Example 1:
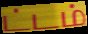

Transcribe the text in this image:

ட்டம்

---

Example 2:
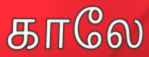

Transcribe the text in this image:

காலே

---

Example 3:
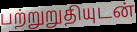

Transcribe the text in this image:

பற்றுறுதியுடன்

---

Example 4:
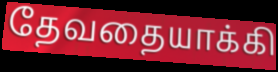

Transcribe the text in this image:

தேவதையாக்கி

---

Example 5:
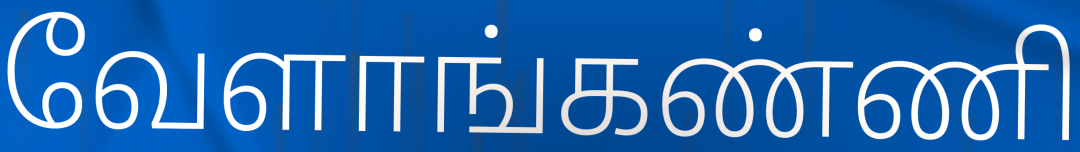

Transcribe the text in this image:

வேளாங்கண்ணி